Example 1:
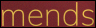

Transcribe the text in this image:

mends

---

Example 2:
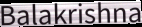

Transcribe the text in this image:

Balakrishna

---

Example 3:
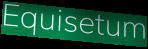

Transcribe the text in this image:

Equisetum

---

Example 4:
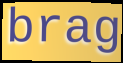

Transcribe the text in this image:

brag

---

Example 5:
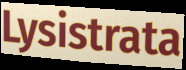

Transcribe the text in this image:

Lysistrata